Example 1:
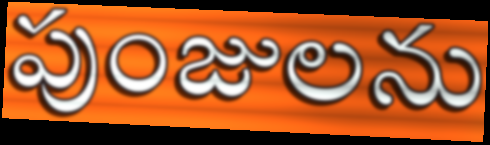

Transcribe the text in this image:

పుంజులను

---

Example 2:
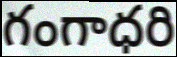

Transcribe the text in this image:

గంగాధరి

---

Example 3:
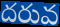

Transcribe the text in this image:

దరువ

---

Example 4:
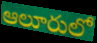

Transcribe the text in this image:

ఆలూరులో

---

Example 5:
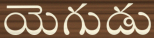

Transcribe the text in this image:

యెగుడు